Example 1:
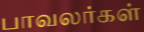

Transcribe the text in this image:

பாவலர்கள்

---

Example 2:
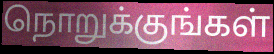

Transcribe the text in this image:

நொறுக்குங்கள்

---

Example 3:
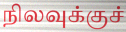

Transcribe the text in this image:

நிலவுக்குச்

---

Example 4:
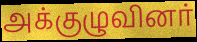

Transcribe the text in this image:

அக்குழுவினர்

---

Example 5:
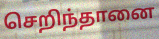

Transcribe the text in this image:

செறிந்தானை